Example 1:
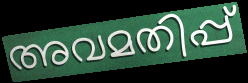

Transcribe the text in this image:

അവമതിപ്പ്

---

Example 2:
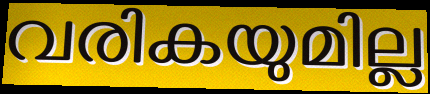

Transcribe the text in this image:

വരികയുമില്ല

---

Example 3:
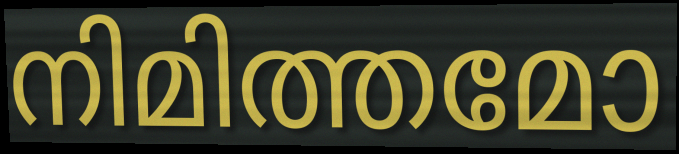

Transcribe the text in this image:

നിമിത്തമോ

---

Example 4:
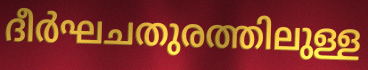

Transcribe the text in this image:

ദീർഘചതുരത്തിലുള്ള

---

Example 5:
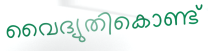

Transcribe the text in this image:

വൈദ്യുതികൊണ്ട്